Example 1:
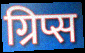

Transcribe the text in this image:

ग्रिप्स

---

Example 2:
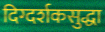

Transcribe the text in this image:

दिग्दर्शकसुद्धा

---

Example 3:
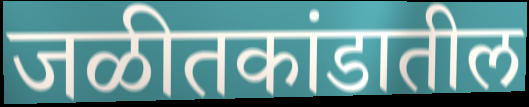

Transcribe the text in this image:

जळीतकांडातील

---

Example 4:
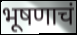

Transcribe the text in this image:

भूषणाचं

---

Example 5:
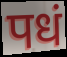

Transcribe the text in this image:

पधं